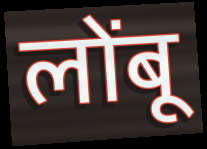
लोंबू